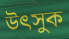
উৎসুক